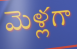
మెళ్లగా